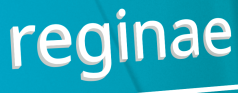
reginae